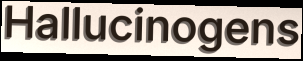
Hallucinogens